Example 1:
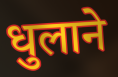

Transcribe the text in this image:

धुलाने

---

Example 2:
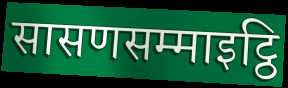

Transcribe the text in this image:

सासणसम्माइट्ठि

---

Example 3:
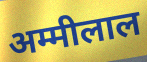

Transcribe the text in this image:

अम्मीलाल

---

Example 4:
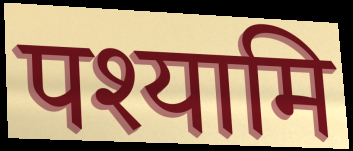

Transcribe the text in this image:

पश्यामि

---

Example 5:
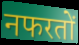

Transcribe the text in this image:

नफरतों